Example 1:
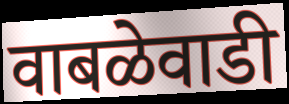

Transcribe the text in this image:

वाबळेवाडी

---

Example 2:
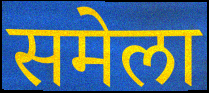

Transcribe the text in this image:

समेला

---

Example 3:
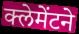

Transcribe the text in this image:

क्लेमेंटने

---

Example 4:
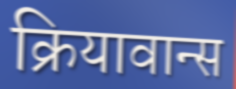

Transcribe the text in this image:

क्रियावान्स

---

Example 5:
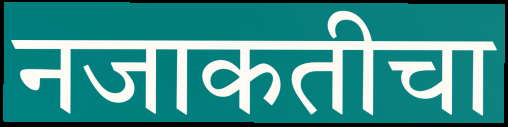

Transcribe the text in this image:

नजाकतीचा